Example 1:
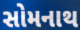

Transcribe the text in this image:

સોમનાથ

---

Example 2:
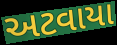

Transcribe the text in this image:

અટવાયા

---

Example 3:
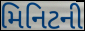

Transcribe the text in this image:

મિનિટની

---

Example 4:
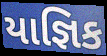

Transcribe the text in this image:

યાજ્ઞિક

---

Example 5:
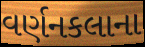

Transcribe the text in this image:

વર્ણનકલાના